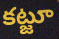
కట్జూ